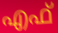
എഫ്